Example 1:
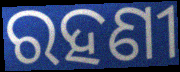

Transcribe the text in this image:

ରହଣୀ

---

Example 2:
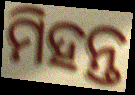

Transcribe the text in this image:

ମିହନ୍ତ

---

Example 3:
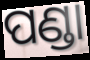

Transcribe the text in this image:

ପଣ୍ଡା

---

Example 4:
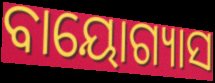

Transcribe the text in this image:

ବାୟୋଗ୍ୟାସ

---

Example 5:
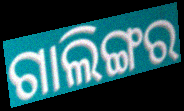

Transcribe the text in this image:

ଗାଲିଙ୍ଗର